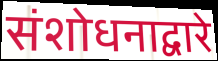
संशोधनाद्वारे